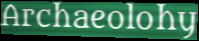
Archaeolohy